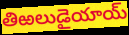
తిఱలుడైయాయ్